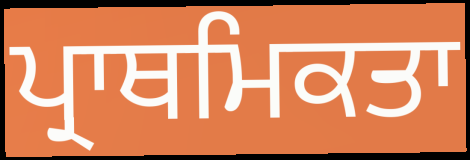
ਪ੍ਰਾਥਮਿਕਤਾ